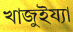
খাজুইয্যা